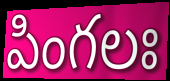
పింగలః